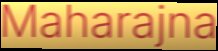
Maharajna